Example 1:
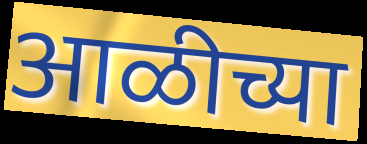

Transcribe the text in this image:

आळीच्या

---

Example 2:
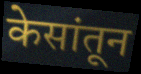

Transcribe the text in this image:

केसांतून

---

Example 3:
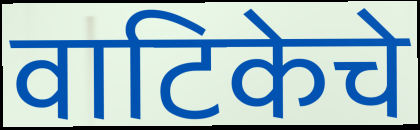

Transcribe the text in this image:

वाटिकेचे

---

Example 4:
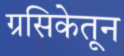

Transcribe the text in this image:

ग्रसिकेतून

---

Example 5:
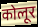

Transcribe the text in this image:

कोलूर